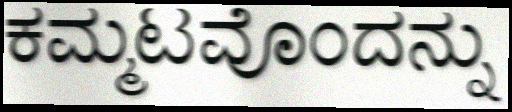
ಕಮ್ಮಟವೊಂದನ್ನು